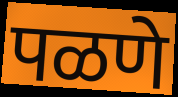
पळणे